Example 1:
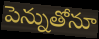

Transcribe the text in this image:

పెన్నుతోనూ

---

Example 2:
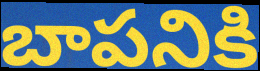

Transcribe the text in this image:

బాపనికి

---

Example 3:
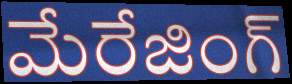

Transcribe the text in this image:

మేరేజింగ్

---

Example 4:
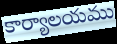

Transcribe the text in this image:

కార్యాలయము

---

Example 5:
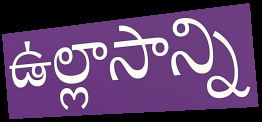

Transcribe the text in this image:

ఉల్లాసాన్ని